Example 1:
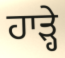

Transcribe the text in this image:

ਹਾੜ੍ਹੇ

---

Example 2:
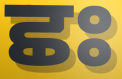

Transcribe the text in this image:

ਛਃ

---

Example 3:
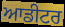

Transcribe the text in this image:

ਆਡੀਟਰ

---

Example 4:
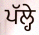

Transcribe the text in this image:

ਪੱਲ੍ਹੇ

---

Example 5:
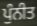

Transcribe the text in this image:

ਪੁੰਨੀਤ